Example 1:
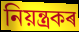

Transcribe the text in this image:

নিয়ন্ত্ৰকৰ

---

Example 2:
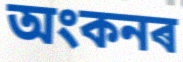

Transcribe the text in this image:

অংকনৰ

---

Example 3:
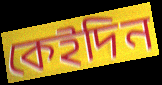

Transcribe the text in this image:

কেইদিন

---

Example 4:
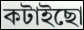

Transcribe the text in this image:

কটাইছো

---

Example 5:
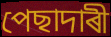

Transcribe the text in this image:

পেছাদাৰী